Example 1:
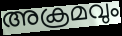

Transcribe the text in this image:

അക്രമവും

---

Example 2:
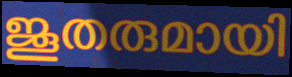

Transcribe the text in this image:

ജൂതരുമായി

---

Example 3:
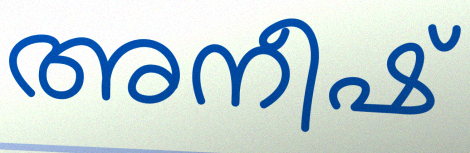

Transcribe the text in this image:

അനീഷ്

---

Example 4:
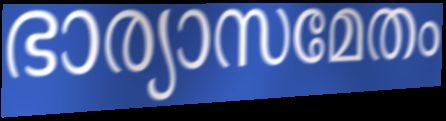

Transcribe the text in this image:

ഭാര്യാസമേതം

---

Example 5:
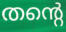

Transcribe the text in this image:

തന്റെ